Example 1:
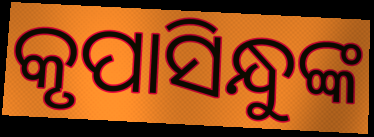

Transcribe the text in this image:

କୃପାସିନ୍ଧୁଙ୍କ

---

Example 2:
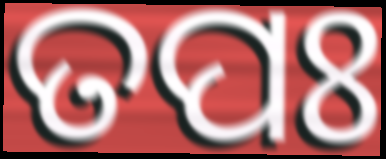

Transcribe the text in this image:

ତପଃ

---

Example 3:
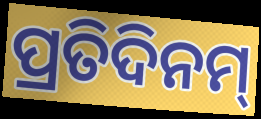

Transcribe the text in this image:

ପ୍ରତିଦିନମ୍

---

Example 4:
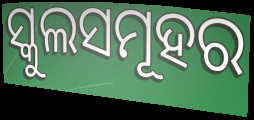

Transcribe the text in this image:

ସ୍କୁଲସମୂହର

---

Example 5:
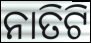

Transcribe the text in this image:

ନାତିଟି